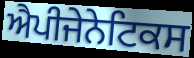
ਐਪੀਜੇਨੇਟਿਕਸ